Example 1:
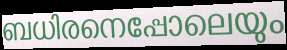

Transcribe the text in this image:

ബധിരനെപ്പോലെയും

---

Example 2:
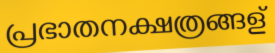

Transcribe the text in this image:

പ്രഭാതനക്ഷത്രങ്ങള്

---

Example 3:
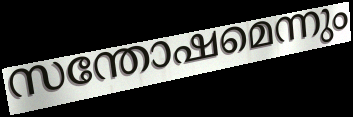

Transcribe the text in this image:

സന്തോഷമെന്നും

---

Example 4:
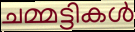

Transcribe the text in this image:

ചമ്മട്ടികൾ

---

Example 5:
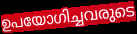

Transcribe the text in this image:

ഉപയോഗിച്ചവരുടെ